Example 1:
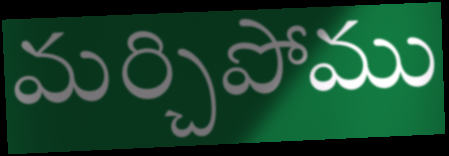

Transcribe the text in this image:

మర్చిపోము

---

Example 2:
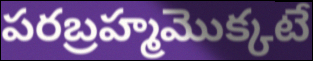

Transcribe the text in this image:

పరబ్రహ్మమొక్కటే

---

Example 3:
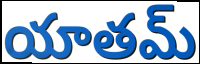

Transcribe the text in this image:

యాతమ్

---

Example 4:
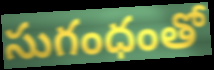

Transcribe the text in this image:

సుగంధంతో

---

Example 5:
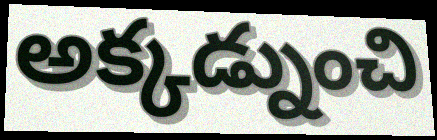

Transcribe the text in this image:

అక్కడ్నుంచి